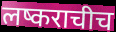
लष्कराचीच